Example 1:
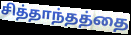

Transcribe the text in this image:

சித்தாந்தத்தை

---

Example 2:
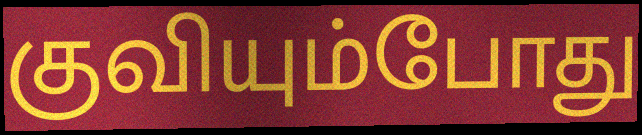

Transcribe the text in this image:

குவியும்போது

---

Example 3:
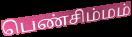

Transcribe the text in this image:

பெண்சிம்மம்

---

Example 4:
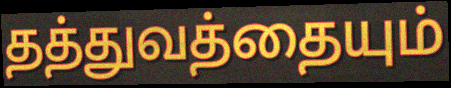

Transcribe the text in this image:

தத்துவத்தையும்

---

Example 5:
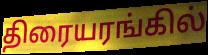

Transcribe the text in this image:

திரையரங்கில்